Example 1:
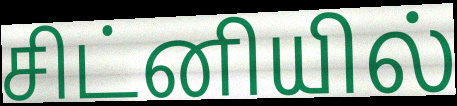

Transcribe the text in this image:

சிட்னியில்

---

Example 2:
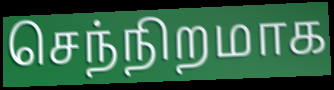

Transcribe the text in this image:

செந்நிறமாக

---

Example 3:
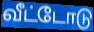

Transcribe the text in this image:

வீட்டோடு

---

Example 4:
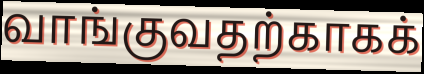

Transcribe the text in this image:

வாங்குவதற்காகக்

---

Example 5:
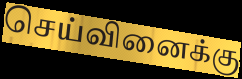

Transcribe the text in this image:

செய்வினைக்கு